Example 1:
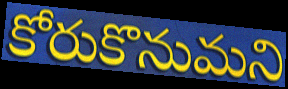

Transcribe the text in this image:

కోరుకొనుమని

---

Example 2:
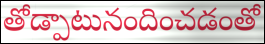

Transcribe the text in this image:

తోడ్పాటునందించడంతో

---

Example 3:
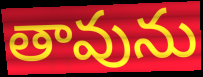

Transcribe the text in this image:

తావును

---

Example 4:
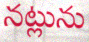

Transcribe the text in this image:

నట్లును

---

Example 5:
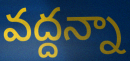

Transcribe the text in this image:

వద్దన్నా